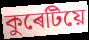
কুৰেটিয়ে